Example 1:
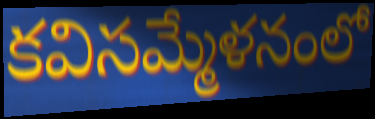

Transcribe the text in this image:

కవిసమ్మేళనంలో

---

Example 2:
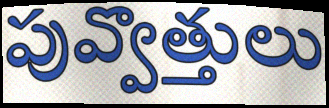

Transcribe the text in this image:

పువ్వొత్తులు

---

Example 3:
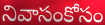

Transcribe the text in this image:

నివాసంకోసం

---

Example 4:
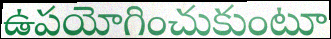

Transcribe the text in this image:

ఉపయోగించుకుంటూ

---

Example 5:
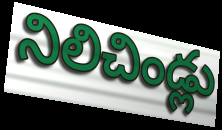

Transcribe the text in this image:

నిలిచిండ్లు